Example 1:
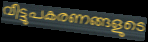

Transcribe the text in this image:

വീട്ടുപകരണങ്ങളുടെ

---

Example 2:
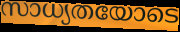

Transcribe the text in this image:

സാധ്യതയോടെ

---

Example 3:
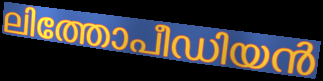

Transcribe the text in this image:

ലിത്തോപീഡിയൻ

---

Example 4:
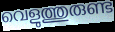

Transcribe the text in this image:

വെളുത്തുരുണ്ട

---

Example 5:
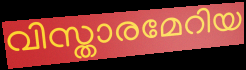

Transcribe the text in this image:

വിസ്താരമേറിയ